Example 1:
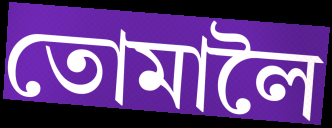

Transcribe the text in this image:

তোমালৈ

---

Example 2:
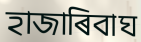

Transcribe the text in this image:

হাজাৰিবাঘ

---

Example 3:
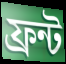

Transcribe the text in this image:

ফ্ৰন্ট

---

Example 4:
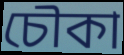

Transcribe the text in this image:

চৌকা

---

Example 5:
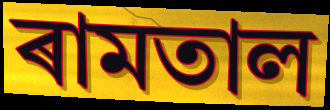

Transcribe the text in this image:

ৰামতাল